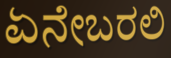
ಏನೇಬರಲಿ